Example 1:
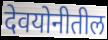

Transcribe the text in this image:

देवयोनीतील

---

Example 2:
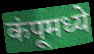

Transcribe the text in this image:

कंपूमध्ये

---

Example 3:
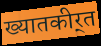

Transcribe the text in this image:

ख्यातकीर्त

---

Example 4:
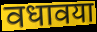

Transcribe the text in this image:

वधावया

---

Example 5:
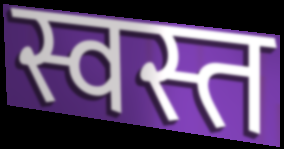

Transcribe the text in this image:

स्वस्त